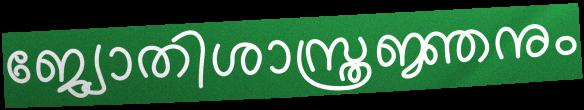
ജ്യോതിശാസ്ത്രജ്ഞനും